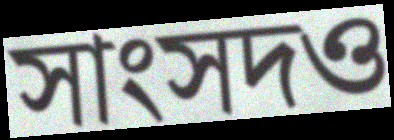
সাংসদও